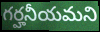
గర్హనీయమని